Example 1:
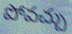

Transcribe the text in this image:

పోవచ్చు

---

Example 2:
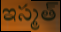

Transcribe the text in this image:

ఇస్మత్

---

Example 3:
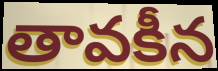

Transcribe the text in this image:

తావకీన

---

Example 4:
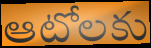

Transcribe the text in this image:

ఆటోలకు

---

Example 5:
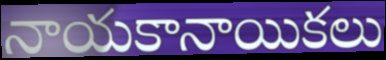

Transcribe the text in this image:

నాయకానాయికలు